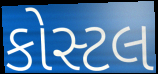
કોસ્ટલ